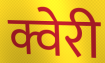
क्वेरी